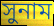
সুনাম